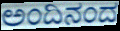
ಅಂದಿನಂದ